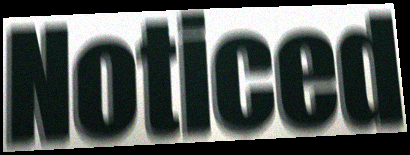
Noticed